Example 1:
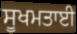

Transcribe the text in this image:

ਸੂਖਮਤਾਈ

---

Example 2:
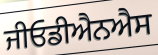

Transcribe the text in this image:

ਜੀਓਡੀਐਨਐਸ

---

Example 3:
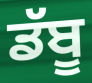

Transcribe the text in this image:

ਡੱਬੂ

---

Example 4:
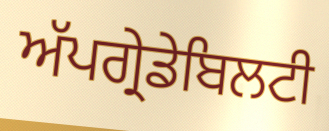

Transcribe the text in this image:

ਅੱਪਗ੍ਰੇਡੇਬਿਲਟੀ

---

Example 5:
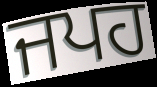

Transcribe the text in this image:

ਜਪਹ